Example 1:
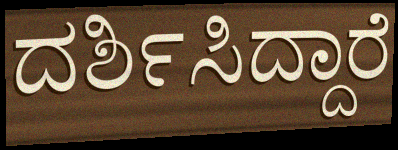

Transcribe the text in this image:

ದರ್ಶಿಸಿದ್ದಾರೆ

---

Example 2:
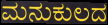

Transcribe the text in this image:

ಮನುಕುಲದ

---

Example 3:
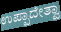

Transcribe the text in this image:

ಉಪ್ಪಾದೇತ್ವಾ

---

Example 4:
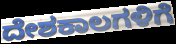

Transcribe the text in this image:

ದೇಶಕಾಲಗಳಿಗೆ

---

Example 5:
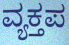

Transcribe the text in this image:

ವ್ಯಕ್ತಪ